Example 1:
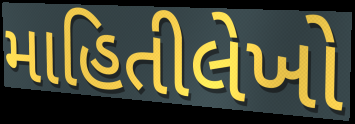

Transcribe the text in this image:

માહિતીલેખો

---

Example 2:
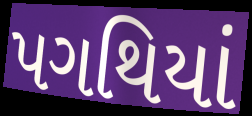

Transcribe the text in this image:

પગથિયાં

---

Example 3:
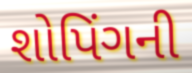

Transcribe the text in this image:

શોપિંગની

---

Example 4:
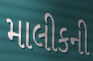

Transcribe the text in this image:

માલીકની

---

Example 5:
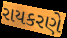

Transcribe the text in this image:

રાયકરણે